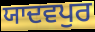
ਯਾਦਵਪੁਰ